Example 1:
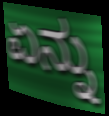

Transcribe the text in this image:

ಏನ್ನು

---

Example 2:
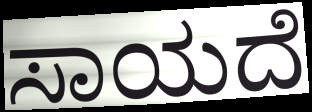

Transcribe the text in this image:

ಸಾಯದೆ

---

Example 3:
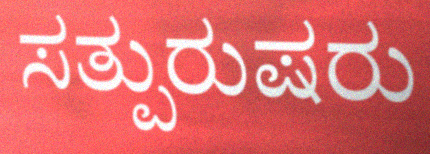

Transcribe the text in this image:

ಸತ್ಪುರುಷರು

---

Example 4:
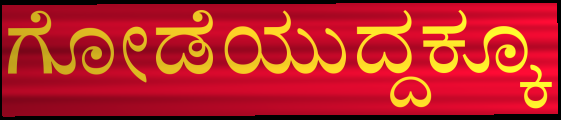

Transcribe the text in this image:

ಗೋಡೆಯುದ್ದಕ್ಕೂ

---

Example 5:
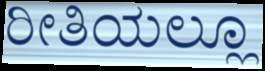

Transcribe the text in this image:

ರೀತಿಯಲ್ಲೂ